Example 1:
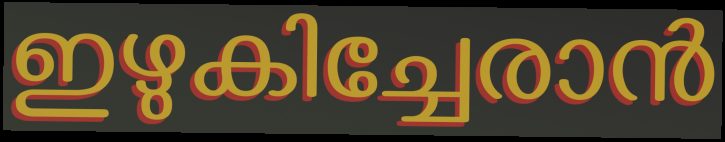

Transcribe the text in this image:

ഇഴുകിച്ചേരാൻ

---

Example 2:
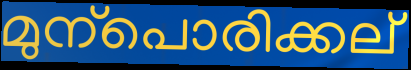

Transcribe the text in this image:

മുന്പൊരിക്കല്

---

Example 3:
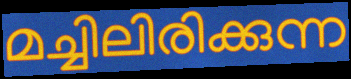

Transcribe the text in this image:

മച്ചിലിരിക്കുന്ന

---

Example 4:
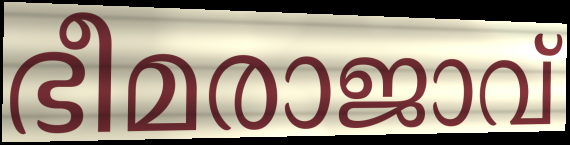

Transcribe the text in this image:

ഭീമരാജാവ്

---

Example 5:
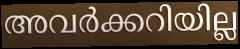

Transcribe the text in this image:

അവർക്കറിയില്ല